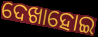
ଦେଖାହୋଇ